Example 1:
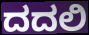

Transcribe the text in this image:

ದದಲಿ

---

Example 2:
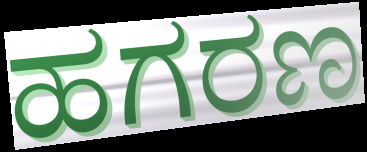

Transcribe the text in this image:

ಹಗರಣ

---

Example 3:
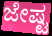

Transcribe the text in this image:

ಜೇಷ್ಟ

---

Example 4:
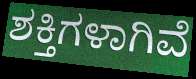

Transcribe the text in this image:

ಶಕ್ತಿಗಳಾಗಿವೆ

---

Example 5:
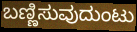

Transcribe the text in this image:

ಬಣ್ಣಿಸುವುದುಂಟು